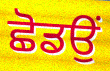
ਛੋਡਉਂ